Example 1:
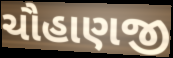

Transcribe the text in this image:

ચૌહાણજી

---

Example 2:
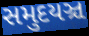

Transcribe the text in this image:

સમુદયઞ્ચ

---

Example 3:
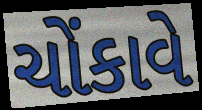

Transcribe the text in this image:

ચોંકાવે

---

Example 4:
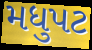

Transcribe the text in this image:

મધુપટ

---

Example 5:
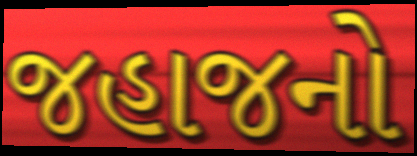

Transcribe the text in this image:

જહાજનો